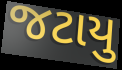
જટાયુ